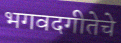
भगवदगीतेचे